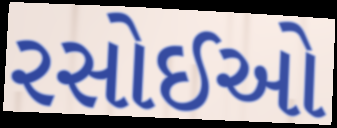
રસોઈઓ